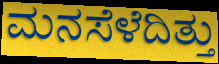
ಮನಸೆಳೆದಿತ್ತು